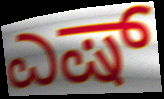
ಎಷ್